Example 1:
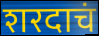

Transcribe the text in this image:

शरदाचं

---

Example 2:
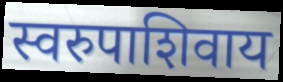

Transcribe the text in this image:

स्वरुपाशिवाय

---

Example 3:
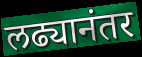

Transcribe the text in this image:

लढ्यानंतर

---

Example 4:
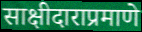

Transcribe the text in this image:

साक्षीदाराप्रमाणे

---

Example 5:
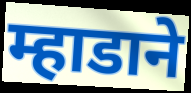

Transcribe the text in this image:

म्हाडाने